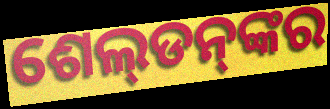
ଶେଲ୍‌ଡନ୍‌ଙ୍କର